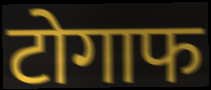
टोगाफ